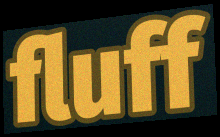
fluff